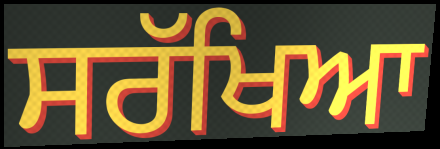
ਸਰੱਖਿਆ